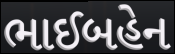
ભાઈબહેન